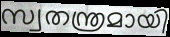
സ്വതന്ത്രമായി